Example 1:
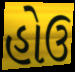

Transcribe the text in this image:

હોઉ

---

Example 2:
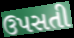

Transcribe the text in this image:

ઉપસતી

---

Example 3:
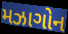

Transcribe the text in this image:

મઝાગોન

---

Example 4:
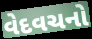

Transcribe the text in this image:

વેદવચનો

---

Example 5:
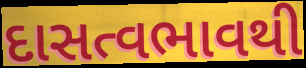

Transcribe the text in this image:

દાસત્વભાવથી